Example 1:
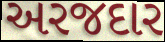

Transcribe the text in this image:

અરજદાર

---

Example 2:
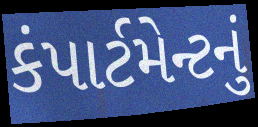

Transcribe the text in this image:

કંપાર્ટમેન્ટનું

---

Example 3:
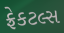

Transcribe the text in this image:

ફ્રેકટલ્સ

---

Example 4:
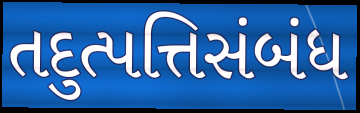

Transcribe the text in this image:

તદુત્પત્તિસંબંધ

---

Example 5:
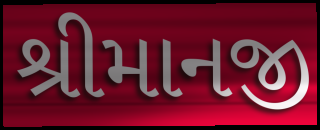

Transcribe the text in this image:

શ્રીમાનજી